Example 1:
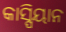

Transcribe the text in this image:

କାସ୍ପିୟାନ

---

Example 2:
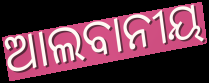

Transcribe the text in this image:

ଆଲବାନୀୟ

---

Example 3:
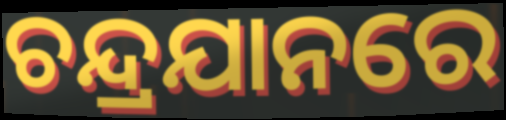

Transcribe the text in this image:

ଚନ୍ଦ୍ରଯାନରେ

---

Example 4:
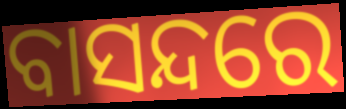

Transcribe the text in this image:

ବାସନ୍ଦରେ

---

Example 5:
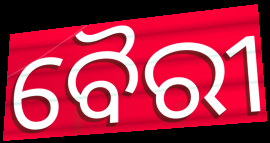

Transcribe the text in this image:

ବୈରୀ